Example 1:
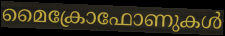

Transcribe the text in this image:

മൈക്രോഫോണുകൾ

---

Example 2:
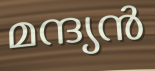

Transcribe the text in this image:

മന്ദ്യൻ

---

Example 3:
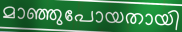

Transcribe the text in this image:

മാഞ്ഞുപോയതായി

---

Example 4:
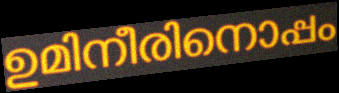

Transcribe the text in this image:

ഉമിനീരിനൊപ്പം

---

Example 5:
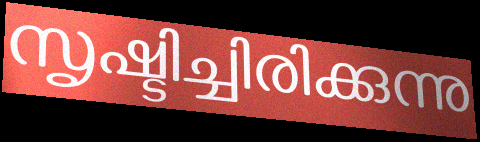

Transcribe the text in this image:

സൃഷ്ടിച്ചിരിക്കുന്നു